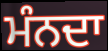
ਮੰਨਦਾ